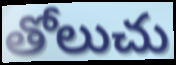
తోలుచు